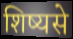
शिष्यसे